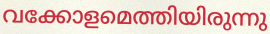
വക്കോളമെത്തിയിരുന്നു